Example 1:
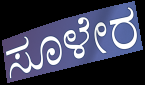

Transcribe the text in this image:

ಸೂಳೇರ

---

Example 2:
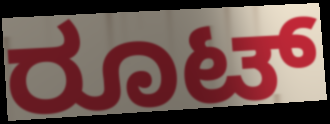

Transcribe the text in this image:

ರೂಟ್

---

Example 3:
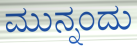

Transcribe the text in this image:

ಮುನ್ನಂದು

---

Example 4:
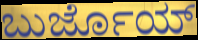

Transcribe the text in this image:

ಬುರ್ಜೊಯ್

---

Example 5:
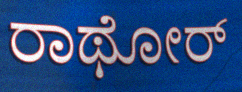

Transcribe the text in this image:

ರಾಥೋರ್